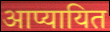
आप्यायित